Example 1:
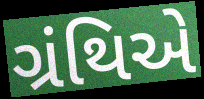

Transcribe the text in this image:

ગ્રંથિએ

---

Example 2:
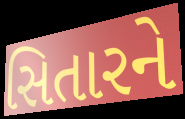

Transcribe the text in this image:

સિતારને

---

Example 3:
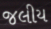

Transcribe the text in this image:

જલીય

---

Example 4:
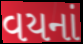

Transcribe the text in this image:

વયનાં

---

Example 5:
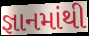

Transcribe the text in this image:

જ્ઞાનમાંથી